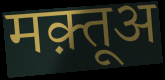
मक़्तूअ